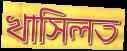
খাসিলত